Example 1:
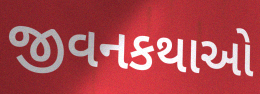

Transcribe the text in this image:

જીવનકથાઓ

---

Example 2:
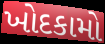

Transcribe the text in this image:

ખોદકામો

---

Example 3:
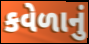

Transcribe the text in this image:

કવેળાનું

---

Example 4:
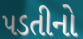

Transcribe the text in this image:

પડતીનો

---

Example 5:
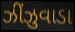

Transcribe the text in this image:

ઝીંઝુવાડા